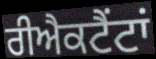
ਰੀਐਕਟੈਂਟਾਂ